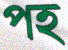
পহ